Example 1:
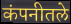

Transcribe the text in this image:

कंपनीतले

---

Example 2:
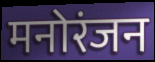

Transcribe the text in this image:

मनोरंजन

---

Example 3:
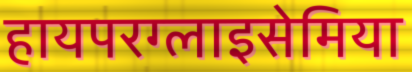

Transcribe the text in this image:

हायपरग्लाइसेमिया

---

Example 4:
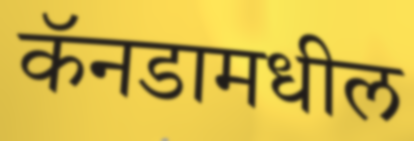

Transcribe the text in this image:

कॅनडामधील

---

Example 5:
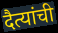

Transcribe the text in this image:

दैत्यांची